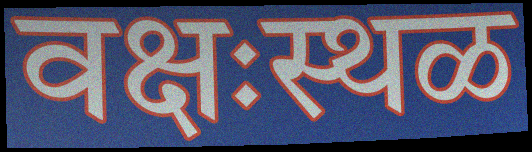
वक्षःस्थळ